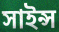
সাইন্স